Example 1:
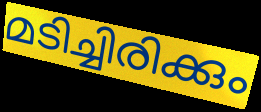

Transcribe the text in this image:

മടിച്ചിരിക്കും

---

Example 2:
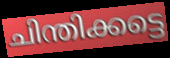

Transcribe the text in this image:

ചിന്തിക്കട്ടെ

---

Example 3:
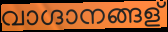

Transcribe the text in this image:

വാഗ്ദാനങ്ങള്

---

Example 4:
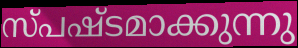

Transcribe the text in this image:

സ്പഷ്ടമാക്കുന്നു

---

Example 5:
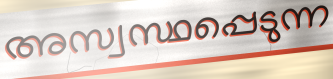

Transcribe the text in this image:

അസ്വസ്ഥപ്പെടുന്ന